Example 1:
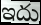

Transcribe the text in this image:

ఇదు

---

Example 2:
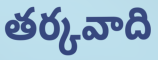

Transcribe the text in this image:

తర్కవాది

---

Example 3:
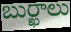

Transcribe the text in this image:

బుర్ఖాలు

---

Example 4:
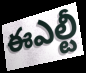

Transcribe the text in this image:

ఈఎల్టీ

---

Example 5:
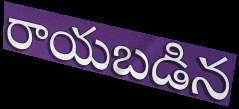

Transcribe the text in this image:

రాయబడిన